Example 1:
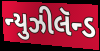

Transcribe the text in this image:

ન્યુઝીલૅન્ડ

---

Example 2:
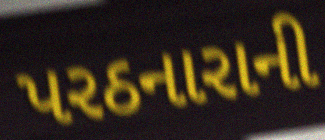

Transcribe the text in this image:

પરઠનારાની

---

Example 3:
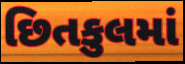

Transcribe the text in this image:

છિતકુલમાં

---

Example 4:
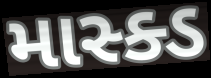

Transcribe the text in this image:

માસ્ક્ડ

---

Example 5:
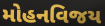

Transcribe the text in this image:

મોહનવિજય